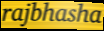
rajbhasha